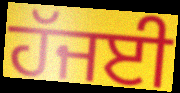
ਹੱਜਈ